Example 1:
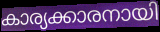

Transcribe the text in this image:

കാര്യക്കാരനായി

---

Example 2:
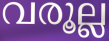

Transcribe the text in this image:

വരൂല്ല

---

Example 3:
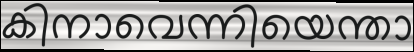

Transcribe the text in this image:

കിനാവെന്നിയെന്താ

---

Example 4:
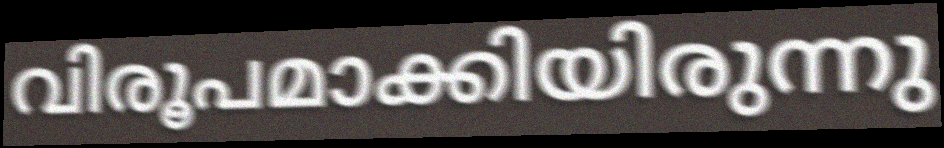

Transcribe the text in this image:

വിരൂപമാക്കിയിരുന്നു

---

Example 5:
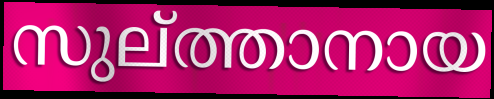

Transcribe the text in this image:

സുല്ത്താനായ